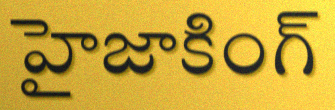
హైజాకింగ్